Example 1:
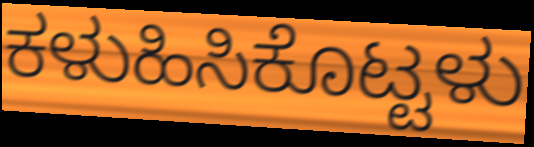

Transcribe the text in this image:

ಕಳುಹಿಸಿಕೊಟ್ಟಳು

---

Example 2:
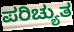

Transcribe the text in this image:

ಪರಿಚ್ಯುತ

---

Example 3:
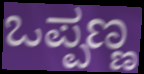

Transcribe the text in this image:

ಒಪ್ಪಣ್ಣ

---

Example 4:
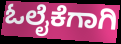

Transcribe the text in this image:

ಓಲೈಕೆಗಾಗಿ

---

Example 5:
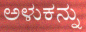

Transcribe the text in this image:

ಅಳುಕನ್ನು